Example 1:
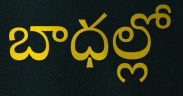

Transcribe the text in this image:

బాధల్లో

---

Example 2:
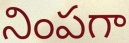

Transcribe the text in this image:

నింపగా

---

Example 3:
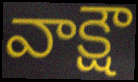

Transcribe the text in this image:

వాక్షౌ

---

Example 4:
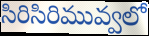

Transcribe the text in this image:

సిరిసిరిమువ్వలో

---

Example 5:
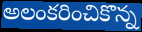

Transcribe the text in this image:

అలంకరించికొన్న